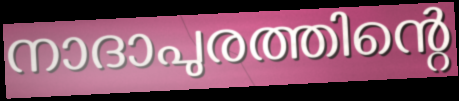
നാദാപുരത്തിന്റെ